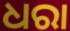
ଧରା